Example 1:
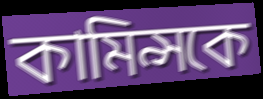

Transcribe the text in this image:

কামিন্সকে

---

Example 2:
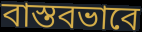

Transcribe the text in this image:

বাস্তবভাবে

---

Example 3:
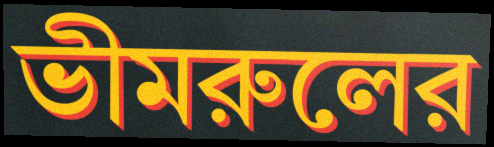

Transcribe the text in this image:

ভীমরুলের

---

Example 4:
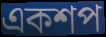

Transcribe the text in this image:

একশপ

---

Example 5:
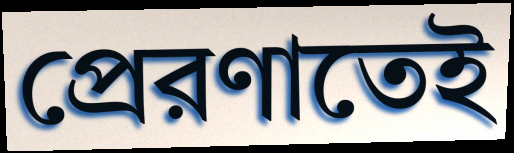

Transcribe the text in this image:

প্রেরণাতেই